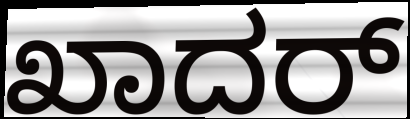
ಖಾದರ್